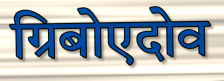
ग्रिबोएदोव